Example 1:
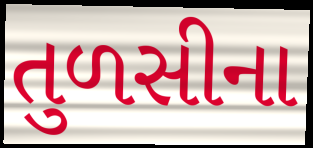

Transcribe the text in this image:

તુળસીના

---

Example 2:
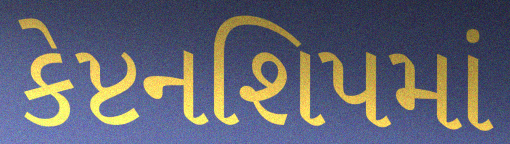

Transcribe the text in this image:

કેપ્ટનશિપમાં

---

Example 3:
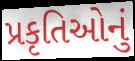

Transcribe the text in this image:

પ્રકૃતિઓનું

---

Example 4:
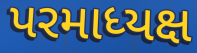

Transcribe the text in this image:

પરમાધ્યક્ષ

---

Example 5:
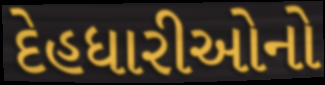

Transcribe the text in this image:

દેહધારીઓનો